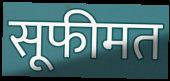
सूफीमत